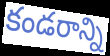
కండరాన్ని